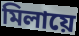
মিলায়ে